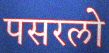
पसरलो